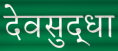
देवसुद्धा